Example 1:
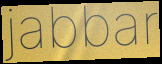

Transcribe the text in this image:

jabbar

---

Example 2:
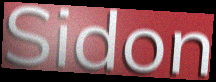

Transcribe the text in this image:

Sidon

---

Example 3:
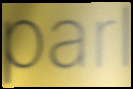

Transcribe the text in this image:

parl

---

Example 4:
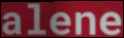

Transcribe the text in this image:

alene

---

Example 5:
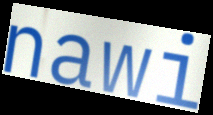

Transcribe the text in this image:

nawi